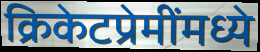
क्रिकेटप्रेमींमध्ये